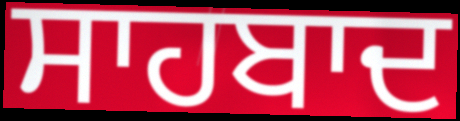
ਸਾਹਬਾਦ